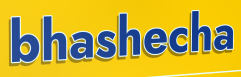
bhashecha